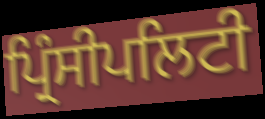
ਪ੍ਰਿੰਸੀਪਲਿਟੀ